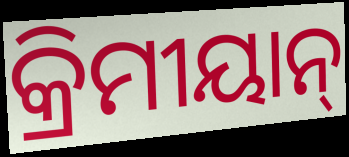
କ୍ରିମୀୟାନ୍